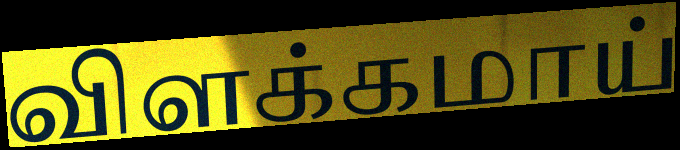
விளக்கமாய்